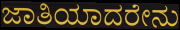
ಜಾತಿಯಾದರೇನು